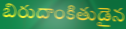
బిరుదాంకితుడైన